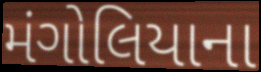
મંગોલિયાના